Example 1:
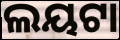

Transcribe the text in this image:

ଲୟଟା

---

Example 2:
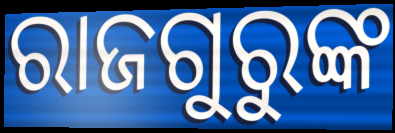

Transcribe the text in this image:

ରାଜଗୁରୁଙ୍କ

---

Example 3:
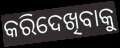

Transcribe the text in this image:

କରିଦେଖିବାକୁ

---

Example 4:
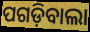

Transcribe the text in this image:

ପଗଡ଼ିବାଲା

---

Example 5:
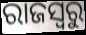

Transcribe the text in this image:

ରାଜସ୍ବରୁ